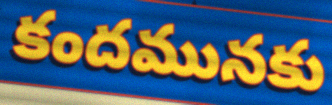
కందమునకు